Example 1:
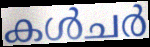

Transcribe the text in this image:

കൾചർ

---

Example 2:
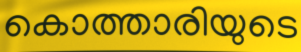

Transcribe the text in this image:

കൊത്താരിയുടെ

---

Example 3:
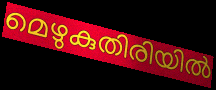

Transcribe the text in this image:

മെഴുകുതിരിയിൽ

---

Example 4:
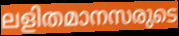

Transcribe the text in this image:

ലളിതമാനസരുടെ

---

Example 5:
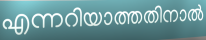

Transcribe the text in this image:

എന്നറിയാത്തതിനാൽ